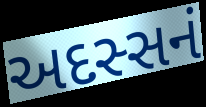
અદસ્સનં